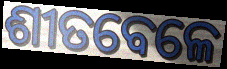
ଶୀତବେଳେ